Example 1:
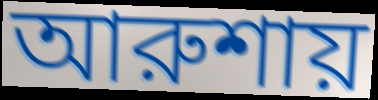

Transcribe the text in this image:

আরুশায়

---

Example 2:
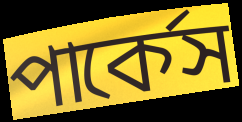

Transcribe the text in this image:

পার্কেস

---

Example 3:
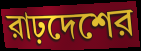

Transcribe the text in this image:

রাঢ়দেশের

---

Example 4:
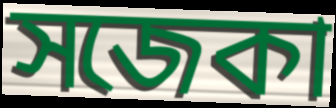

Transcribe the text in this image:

সজেকা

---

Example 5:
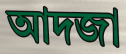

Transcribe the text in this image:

আদজা